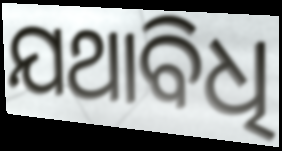
ଯଥାବିଧି